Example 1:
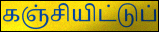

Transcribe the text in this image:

கஞ்சியிட்டுப்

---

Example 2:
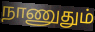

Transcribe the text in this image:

நாணுதும்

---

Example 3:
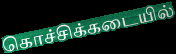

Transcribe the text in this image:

கொச்சிக்கடையில்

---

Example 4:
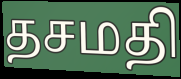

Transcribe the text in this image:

தசமதி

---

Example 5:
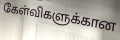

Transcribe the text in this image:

கேள்விகளுக்கான